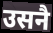
उसनै